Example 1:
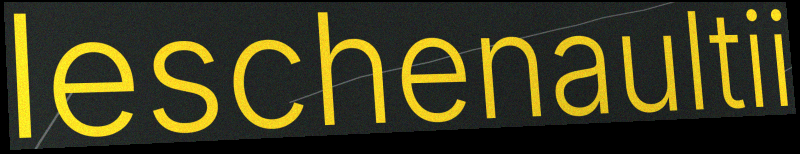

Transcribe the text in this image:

leschenaultii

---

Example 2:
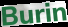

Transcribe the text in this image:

Burin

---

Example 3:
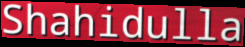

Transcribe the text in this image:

Shahidulla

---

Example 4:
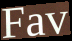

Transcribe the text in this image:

Fav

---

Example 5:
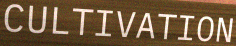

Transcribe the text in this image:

CULTIVATION